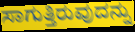
ಸಾಗುತ್ತಿರುವುದನ್ನು